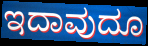
ಇದಾವುದೂ